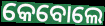
କେବୋଲେ